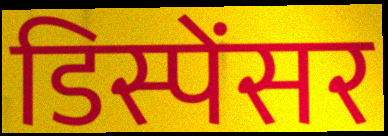
डिस्पेंसर